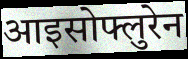
आइसोफ्लुरेन